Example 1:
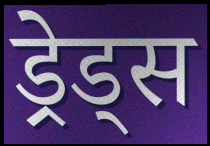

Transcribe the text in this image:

ड्रेड्स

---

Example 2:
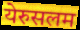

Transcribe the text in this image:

येरुसलम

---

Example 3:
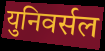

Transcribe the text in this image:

युनिवर्सल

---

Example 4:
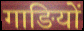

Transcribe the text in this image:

गाङियों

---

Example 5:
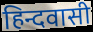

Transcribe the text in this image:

हिन्दवासी